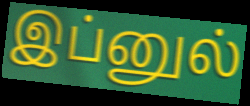
இப்னுல்